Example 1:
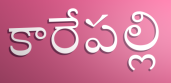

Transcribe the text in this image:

కారేపల్లి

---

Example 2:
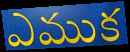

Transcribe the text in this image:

ఎముక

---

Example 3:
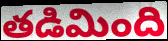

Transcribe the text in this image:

తడిమింది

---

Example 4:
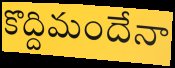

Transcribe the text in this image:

కొద్దిమందేనా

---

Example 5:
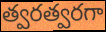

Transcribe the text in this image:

త్వరత్వరగా